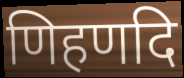
णिहणदि